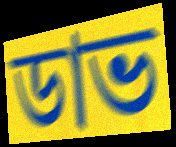
ডাভ